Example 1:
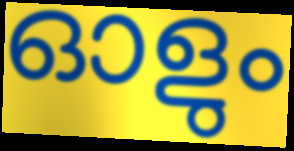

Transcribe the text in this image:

ഓളും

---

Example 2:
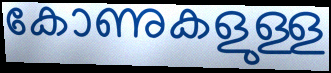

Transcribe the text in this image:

കോണുകളുള്ള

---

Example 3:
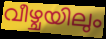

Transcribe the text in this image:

വീഴ്ചയിലും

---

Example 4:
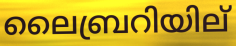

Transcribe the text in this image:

ലൈബ്രറിയില്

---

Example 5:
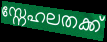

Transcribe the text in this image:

സ്നേഹലതക്ക്